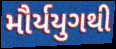
મૌર્યયુગથી